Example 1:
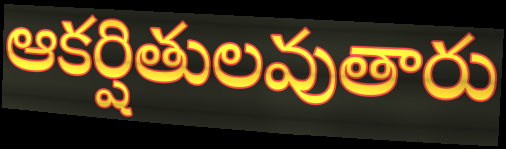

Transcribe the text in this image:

ఆకర్షితులవుతారు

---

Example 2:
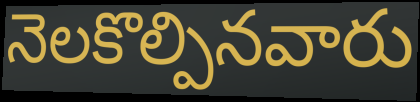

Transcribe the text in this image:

నెలకొల్పినవారు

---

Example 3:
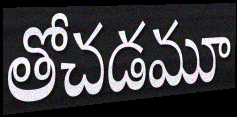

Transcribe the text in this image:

తోచడమూ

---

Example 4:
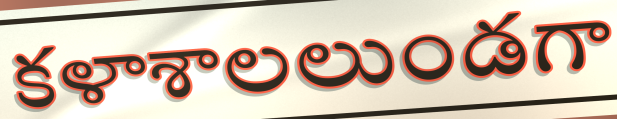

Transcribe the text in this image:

కళాశాలలుండగా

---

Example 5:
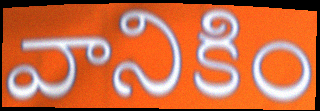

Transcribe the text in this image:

వానికిం